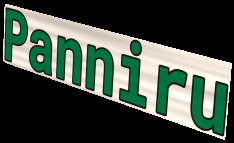
Panniru